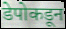
डेपोकडून